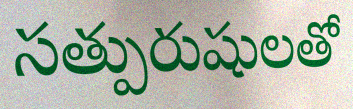
సత్పురుషులతో